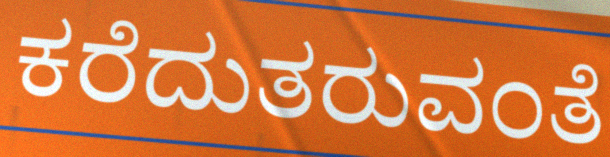
ಕರೆದುತರುವಂತೆ